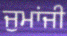
ਜੁਮਾਂਜੀ